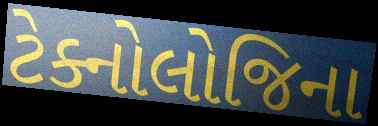
ટેક્નોલોજિના